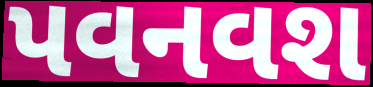
પવનવશ